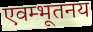
एवम्भूतनय